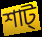
শাট্